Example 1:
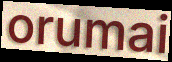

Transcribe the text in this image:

orumai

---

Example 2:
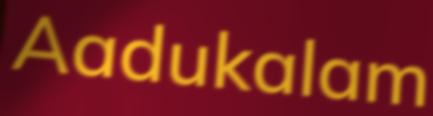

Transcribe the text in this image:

Aadukalam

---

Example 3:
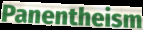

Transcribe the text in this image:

Panentheism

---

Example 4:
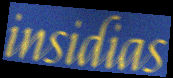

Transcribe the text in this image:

insidias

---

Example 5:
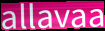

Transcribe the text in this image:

allavaa